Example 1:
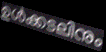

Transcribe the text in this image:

ഉൾക്കടലിനും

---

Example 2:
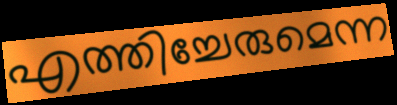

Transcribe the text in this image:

എത്തിച്ചേരുമെന്ന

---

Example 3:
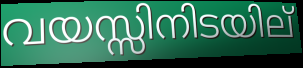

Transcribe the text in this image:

വയസ്സിനിടയില്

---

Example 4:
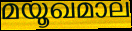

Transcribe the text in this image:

മയൂഖമാല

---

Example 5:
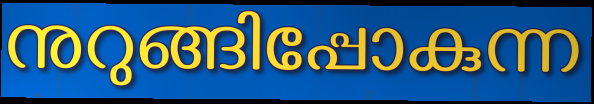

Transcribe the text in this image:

നുറുങ്ങിപ്പോകുന്ന